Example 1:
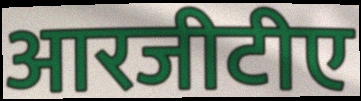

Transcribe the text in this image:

आरजीटीए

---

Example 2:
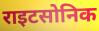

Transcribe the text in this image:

राइटसोनिक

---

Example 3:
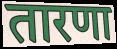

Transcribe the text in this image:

तारणा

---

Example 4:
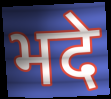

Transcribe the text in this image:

भदे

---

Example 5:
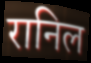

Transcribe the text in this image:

रानिल